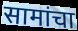
सामांचा